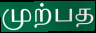
முற்பத